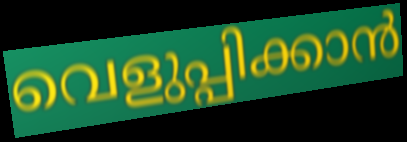
വെളുപ്പിക്കാൻ